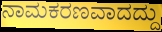
ನಾಮಕರಣವಾದದ್ದು